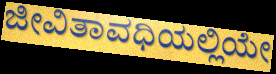
ಜೀವಿತಾವಧಿಯಲ್ಲಿಯೇ